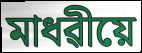
মাধৱীয়ে